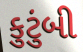
કુટુંબી